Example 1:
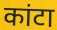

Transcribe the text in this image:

कांटा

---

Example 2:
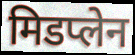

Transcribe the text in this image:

मिडप्लेन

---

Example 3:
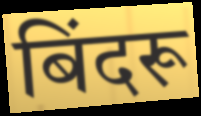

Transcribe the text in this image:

बिंदरू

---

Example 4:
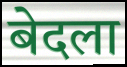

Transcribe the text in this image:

बेदला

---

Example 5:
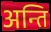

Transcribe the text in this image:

अन्ति